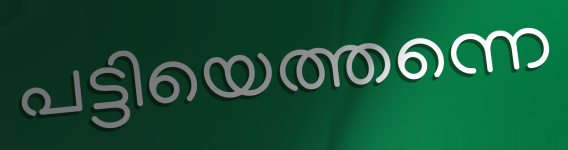
പട്ടിയെത്തന്നെ